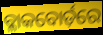
ବ୍ଳାକବୋର୍ଡ଼ରେ